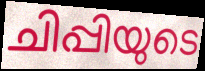
ചിപ്പിയുടെ